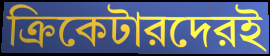
ক্রিকেটারদেরই